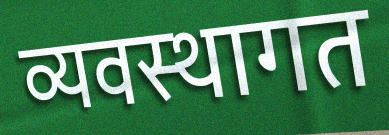
व्यवस्थागत